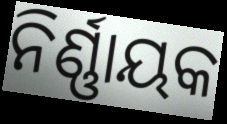
ନିର୍ଣ୍ଣାୟକ